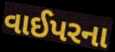
વાઈપરના